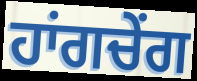
ਹਾਂਗਚੇਂਗ